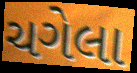
ચગેલા